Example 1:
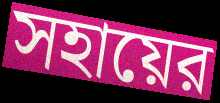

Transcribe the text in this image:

সহায়ের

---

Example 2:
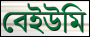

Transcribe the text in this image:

বেইউমি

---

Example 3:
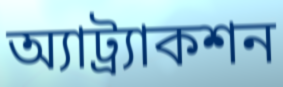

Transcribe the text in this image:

অ্যাট্র্যাকশন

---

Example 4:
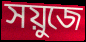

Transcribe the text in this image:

সয়ুজে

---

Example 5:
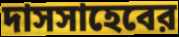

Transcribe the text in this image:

দাসসাহেবের